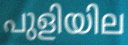
പുളിയില